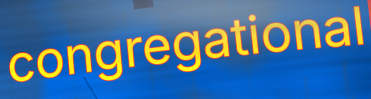
congregational